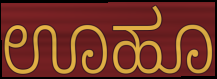
ಊಹೂ